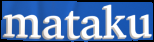
mataku